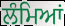
ਲੰਮਿਆਂ